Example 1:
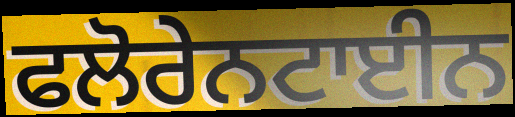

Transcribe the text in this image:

ਫਲੋਰੇਨਟਾਈਨ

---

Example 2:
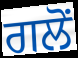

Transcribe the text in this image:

ਗਲੋਂ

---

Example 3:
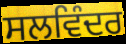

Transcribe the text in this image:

ਸਲਵਿੰਦਰ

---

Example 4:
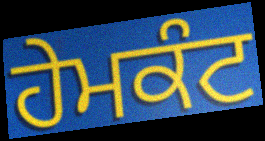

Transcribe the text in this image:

ਹੇਮਕੰਟ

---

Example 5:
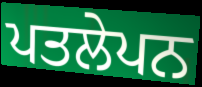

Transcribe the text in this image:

ਪਤਲੇਪਨ